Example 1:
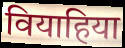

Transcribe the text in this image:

वियाहिया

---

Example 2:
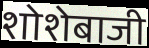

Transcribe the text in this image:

शोशेबाजी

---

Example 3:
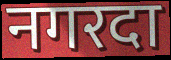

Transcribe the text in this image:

नगरदा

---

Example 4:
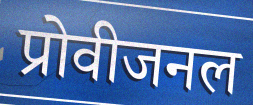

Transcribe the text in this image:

प्रोवीजनल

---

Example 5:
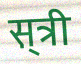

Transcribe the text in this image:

स़्त्री